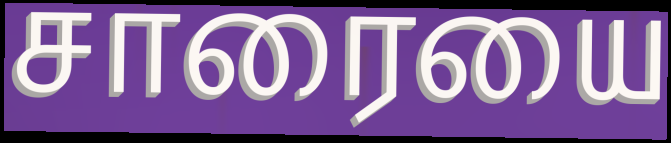
சாரையை